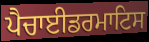
ਪੈਚਾਈਡਰਮਾਟਿਸ